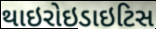
થાઇરોઇડાઇટિસ